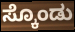
ಸ್ಕೊಂಡು